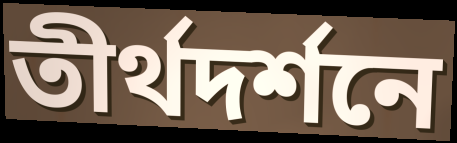
তীর্থদর্শনে